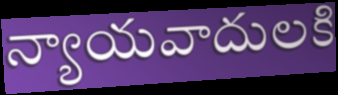
న్యాయవాదులకి